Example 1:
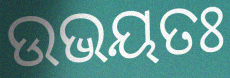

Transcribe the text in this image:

ଉଭୟତଃ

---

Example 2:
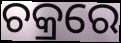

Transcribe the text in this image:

ଚକ୍ରରେ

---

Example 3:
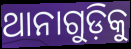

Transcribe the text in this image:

ଥାନାଗୁଡ଼ିକୁ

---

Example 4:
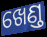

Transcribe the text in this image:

ଖେଣ୍ଡ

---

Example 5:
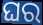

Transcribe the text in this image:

ଘର